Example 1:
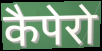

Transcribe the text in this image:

कैपेरो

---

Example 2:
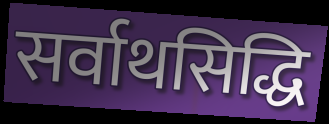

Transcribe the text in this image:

सर्वाथसिद्धि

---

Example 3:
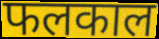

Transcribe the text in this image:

फलकाल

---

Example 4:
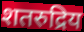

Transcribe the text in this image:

शतरुद्रिय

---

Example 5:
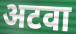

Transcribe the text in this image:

अटवा